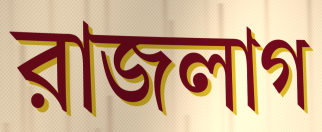
রাজলাগ